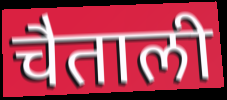
चैताली